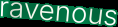
ravenous